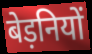
बेड़नियों